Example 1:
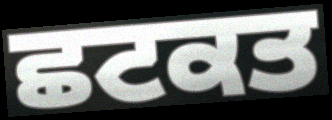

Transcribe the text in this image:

ਛਟਕਤ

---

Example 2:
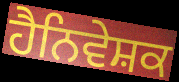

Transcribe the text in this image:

ਹੈਨਿਵੇਸ਼ਕ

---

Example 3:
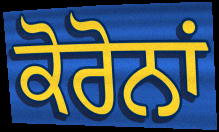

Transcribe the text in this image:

ਕੋਰੋਨਾਂ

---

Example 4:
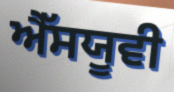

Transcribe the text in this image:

ਐੱਸਯੂਵੀ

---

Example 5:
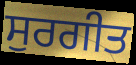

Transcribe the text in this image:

ਸੁਰਗੀਤ